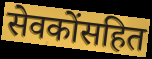
सेवकोंसहित